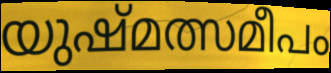
യുഷ്മത്സമീപം